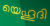
യെഹൂദി